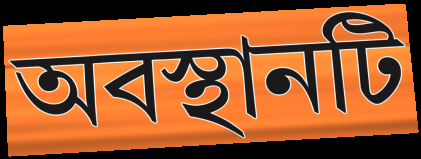
অবস্থানটি